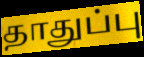
தாதுப்பு